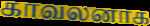
காவலனாக